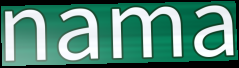
nama